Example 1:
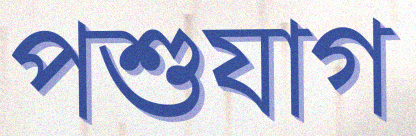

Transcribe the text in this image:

পশুযাগ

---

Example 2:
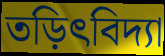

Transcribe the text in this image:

তড়িৎবিদ্যা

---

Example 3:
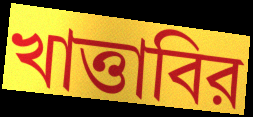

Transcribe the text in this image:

খাত্তাবির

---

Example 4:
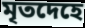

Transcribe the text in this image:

মৃতদেহে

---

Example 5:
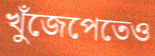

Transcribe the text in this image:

খুঁজেপেতেও